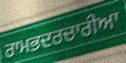
ਰਾਮਭਦਰਚਾਰੀਆ